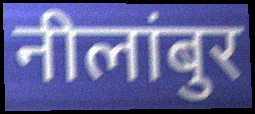
नीलांबुर